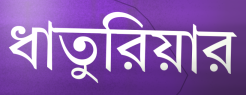
ধাতুরিয়ার